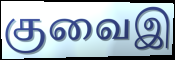
குவைஇ